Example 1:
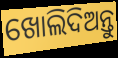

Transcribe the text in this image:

ଖୋଲିଦିଅନ୍ତୁ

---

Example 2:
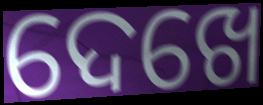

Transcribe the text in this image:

ଦେଖେ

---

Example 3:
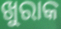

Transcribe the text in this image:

ଖୁରାକ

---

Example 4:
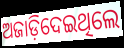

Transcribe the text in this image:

ଅଜାଡ଼ିଦେଇଥିଲେ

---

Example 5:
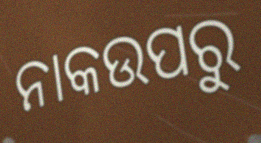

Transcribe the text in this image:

ନାକଉପରୁ